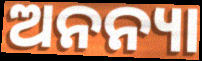
ଅନନ୍ୟା